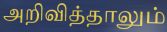
அறிவித்தாலும்